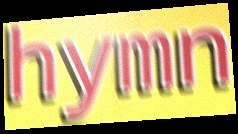
hymn